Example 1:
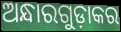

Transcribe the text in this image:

ଅନ୍ଧାରଗୁଡ଼ାକର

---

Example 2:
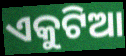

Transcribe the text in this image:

ଏକୁଟିଆ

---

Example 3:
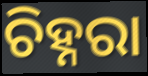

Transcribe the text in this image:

ଚିହ୍ନରା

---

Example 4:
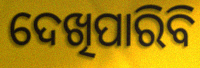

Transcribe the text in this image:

ଦେଖିପାରିବି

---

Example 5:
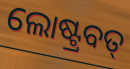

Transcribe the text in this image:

ଲୋଷ୍ଟ୍ରବତ୍